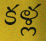
కళ్ల